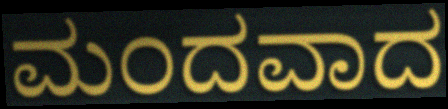
ಮಂದವಾದ